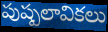
పుష్పలావికలు